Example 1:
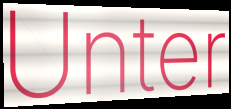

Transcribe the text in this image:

Unter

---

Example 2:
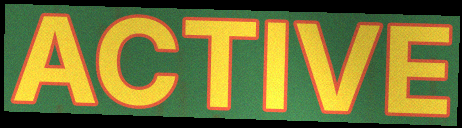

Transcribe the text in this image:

ACTIVE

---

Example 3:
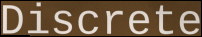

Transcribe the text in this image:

Discrete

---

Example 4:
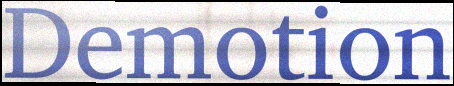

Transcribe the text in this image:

Demotion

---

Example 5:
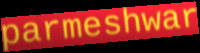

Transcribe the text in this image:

parmeshwar